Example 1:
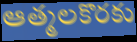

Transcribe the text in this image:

ఆత్మలకొరకు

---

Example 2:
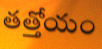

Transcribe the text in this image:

తత్తోయం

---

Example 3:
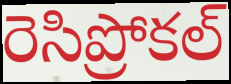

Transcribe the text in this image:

రెసిప్రోకల్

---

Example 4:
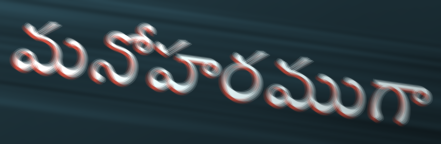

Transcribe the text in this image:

మనోహరముగా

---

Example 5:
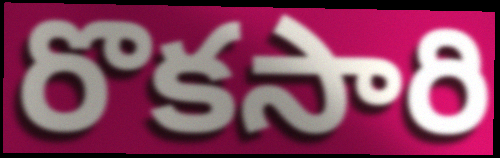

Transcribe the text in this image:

రొకసారి